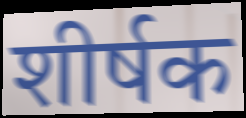
शीर्षक